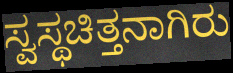
ಸ್ವಸ್ಥಚಿತ್ತನಾಗಿರು